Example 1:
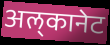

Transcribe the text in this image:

अल्कानेट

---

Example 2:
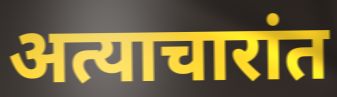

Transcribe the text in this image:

अत्याचारांत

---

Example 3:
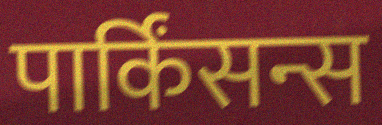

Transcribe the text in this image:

पार्किंसन्स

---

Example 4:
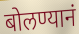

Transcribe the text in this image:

बोलण्यानं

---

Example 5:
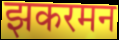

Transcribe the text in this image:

झकरमन